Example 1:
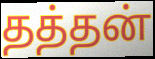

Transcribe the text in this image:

தத்தன்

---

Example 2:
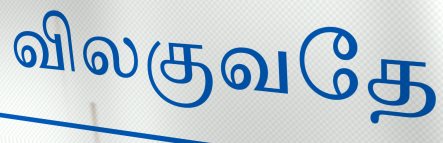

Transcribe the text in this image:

விலகுவதே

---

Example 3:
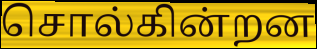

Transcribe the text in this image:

சொல்கின்றன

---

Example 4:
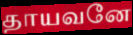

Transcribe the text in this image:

தாயவனே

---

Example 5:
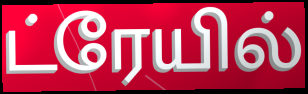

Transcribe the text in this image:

ட்ரேயில்